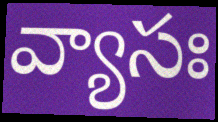
వ్యాసః